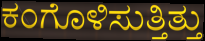
ಕಂಗೊಳಿಸುತ್ತಿತ್ತು